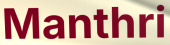
Manthri